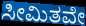
ಸೀಮಿತವೇ